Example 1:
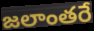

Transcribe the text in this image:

జలాంతరే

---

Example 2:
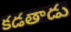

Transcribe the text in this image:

కడతాడు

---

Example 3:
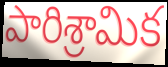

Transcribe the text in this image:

పారిశ్రామిక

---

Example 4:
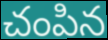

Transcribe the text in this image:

చంపిన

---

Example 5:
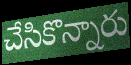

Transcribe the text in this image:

చేసికొన్నారు